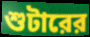
শুটারের